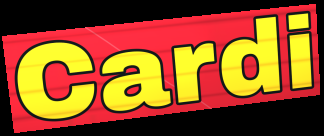
Cardi